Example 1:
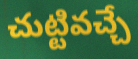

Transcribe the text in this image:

చుట్టివచ్చే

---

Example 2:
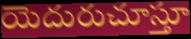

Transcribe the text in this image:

యెదురుచూస్తూ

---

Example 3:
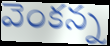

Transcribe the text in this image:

వెంకన్న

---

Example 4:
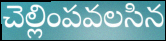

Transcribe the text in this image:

చెల్లింపవలసిన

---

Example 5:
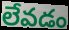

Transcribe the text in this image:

లేవడం